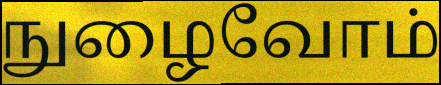
நுழைவோம்